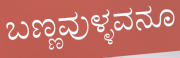
ಬಣ್ಣವುಳ್ಳವನೂ